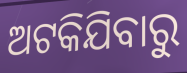
ଅଟକିଯିବାରୁ